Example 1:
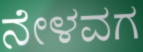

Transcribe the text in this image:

ನೇಳವಗ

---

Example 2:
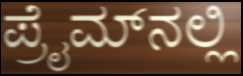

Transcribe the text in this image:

ಪ್ರೈಮ್‌ನಲ್ಲಿ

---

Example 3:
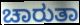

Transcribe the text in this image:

ಚಾರುತಾ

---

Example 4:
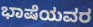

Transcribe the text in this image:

ಭಾಷೆಯವರ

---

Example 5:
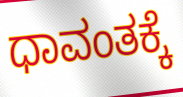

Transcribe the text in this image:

ಧಾವಂತಕ್ಕೆ